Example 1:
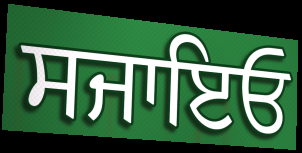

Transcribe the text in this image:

ਸਜਾਇਓ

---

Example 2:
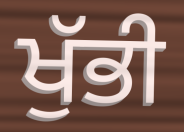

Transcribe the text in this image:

ਖੁੱਭੀ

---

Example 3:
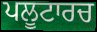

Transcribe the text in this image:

ਪਲੂਟਾਰਚ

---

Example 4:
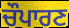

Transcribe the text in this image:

ਚੌਪਾਰਣ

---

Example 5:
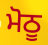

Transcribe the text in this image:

ਮੋਠੂ